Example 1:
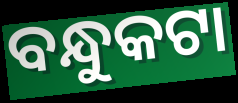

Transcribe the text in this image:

ବନ୍ଧୁକଟା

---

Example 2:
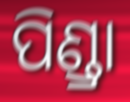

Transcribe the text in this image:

ପିଣ୍ଡ୍ରା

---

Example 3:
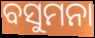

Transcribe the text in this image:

ବସୁମନା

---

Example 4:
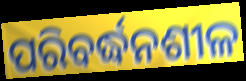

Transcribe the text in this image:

ପରିବର୍ଦ୍ଧନଶୀଳ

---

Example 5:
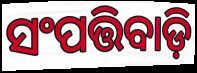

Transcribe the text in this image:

ସଂପତ୍ତିବାଡ଼ି